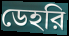
ডেহরি